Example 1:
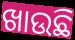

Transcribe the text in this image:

ଖାଉଛି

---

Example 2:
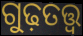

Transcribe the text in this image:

ଗୁଢ଼ତତ୍ତ୍ୱ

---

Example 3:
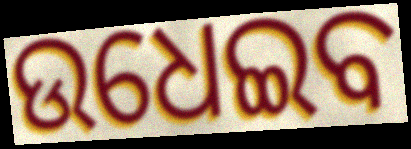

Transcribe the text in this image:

ଉଧେଇବ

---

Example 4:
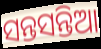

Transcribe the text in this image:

ସନ୍ତସନ୍ତିଆ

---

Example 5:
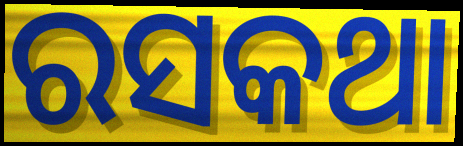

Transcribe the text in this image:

ରସକଥା